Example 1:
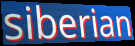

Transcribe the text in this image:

siberian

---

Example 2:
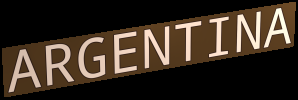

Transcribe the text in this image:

ARGENTINA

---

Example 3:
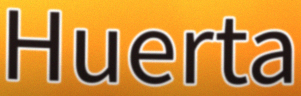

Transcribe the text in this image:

Huerta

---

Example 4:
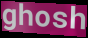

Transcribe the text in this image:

ghosh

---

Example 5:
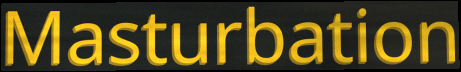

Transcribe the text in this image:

Masturbation